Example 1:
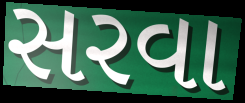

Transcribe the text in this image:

સરવા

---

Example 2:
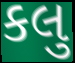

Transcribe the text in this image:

કલુ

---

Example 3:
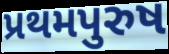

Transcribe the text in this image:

પ્રથમપુરુષ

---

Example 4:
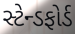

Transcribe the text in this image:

સ્ટેન્ડફોર્ડ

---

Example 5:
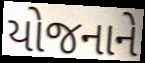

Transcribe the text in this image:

યોજનાને